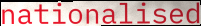
nationalised